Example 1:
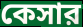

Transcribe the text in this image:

কেসার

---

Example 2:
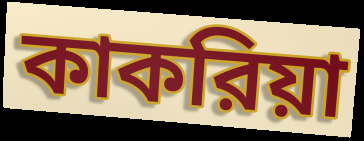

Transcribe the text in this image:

কাকরিয়া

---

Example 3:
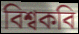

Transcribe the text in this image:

বিশ্বকবি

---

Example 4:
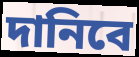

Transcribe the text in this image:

দানিবে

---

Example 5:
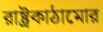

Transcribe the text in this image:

রাষ্ট্রকাঠামোর